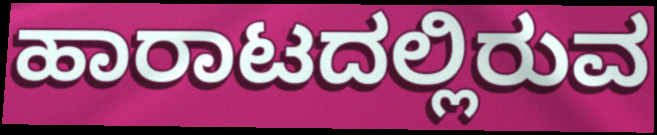
ಹಾರಾಟದಲ್ಲಿರುವ